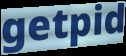
getpid